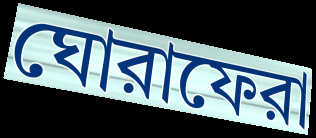
ঘোরাফেরা